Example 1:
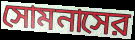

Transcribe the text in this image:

সোমনাসের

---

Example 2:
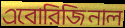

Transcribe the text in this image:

এবোরিজিনাল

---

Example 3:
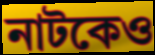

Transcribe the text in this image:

নাটকেও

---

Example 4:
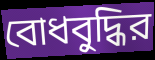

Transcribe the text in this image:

বোধবুদ্ধির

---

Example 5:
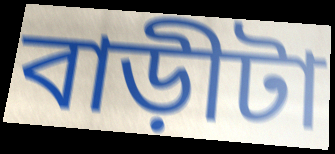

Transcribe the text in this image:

বাড়ীটা